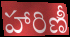
హారిణీ